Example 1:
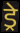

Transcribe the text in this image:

ड्रे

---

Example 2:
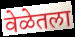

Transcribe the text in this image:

वेळेतला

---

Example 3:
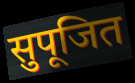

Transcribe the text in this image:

सुपूजित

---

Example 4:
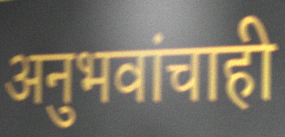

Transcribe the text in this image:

अनुभवांचाही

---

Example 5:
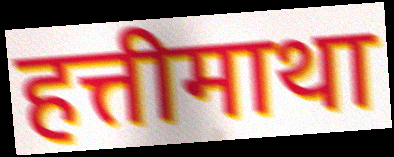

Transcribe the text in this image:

हत्तीमाथा